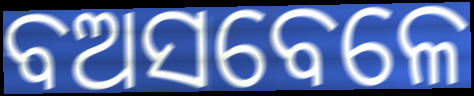
ବଅସବେଳେ